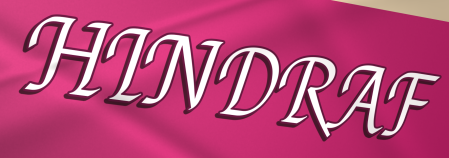
HINDRAF